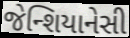
જેન્શિયાનેસી